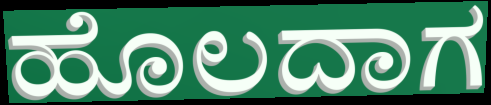
ಹೊಲದಾಗ